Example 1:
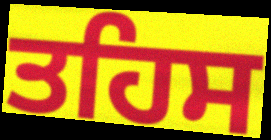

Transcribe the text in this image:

ਤਹਿਸ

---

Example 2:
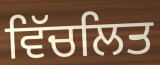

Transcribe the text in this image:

ਵਿੱਚਲਿਤ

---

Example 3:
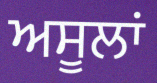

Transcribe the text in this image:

ਅਸੂਲਾਂ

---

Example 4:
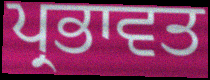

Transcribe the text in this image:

ਪ੍ਰਭਾਵਤ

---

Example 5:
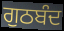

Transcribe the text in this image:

ਗੁਠਬੰਦ